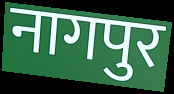
नागपुर